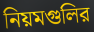
নিয়মগুলির